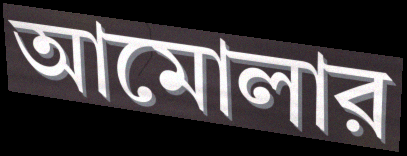
আমোলার